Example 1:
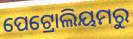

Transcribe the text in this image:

ପେଟ୍ରୋଲିୟମରୁ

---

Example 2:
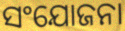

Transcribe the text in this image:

ସଂଯୋଜନା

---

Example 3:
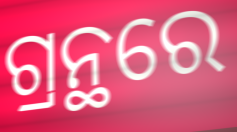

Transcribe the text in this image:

ଗ୍ରନ୍ଥରେ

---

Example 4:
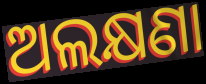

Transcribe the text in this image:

ଅଲକ୍ଷଣା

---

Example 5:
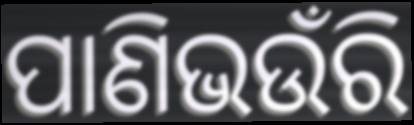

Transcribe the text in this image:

ପାଣିଭଉଁରି